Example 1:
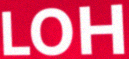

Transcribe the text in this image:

LOH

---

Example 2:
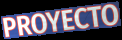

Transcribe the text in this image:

PROYECTO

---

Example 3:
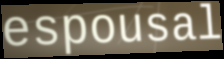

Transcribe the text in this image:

espousal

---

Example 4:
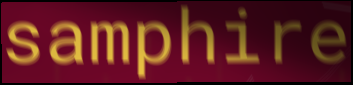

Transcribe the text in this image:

samphire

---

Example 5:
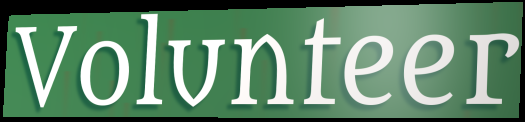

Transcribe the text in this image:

Volunteer